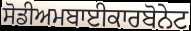
ਸੋਡੀਅਮਬਾਈਕਾਰਬੋਨੇਟ